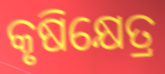
କୃଷିକ୍ଷେତ୍ର